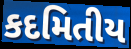
કદમિતીય